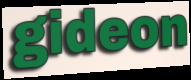
gideon